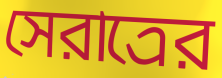
সেরাত্রের